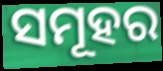
ସମୂହର